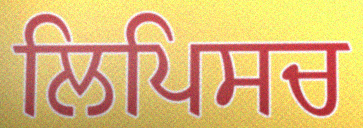
ਲਿਪਿਸਚ